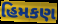
હિમકણ